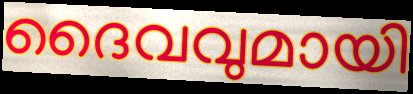
ദൈവവുമായി